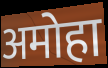
अमोहा